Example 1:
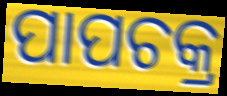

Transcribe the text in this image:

ପାପଚକ୍ର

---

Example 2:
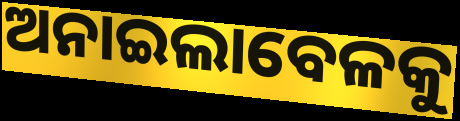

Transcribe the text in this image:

ଅନାଇଲାବେଳକୁ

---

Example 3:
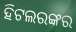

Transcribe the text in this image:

ହିଟଲରଙ୍କର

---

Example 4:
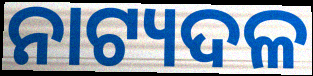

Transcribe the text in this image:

ନାଟ୍ୟଦଳ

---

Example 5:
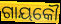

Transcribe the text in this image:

ଗାୟକୌ